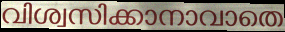
വിശ്വസിക്കാനാവാതെ